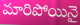
మారిపోయినై